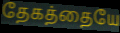
தேகத்தையே